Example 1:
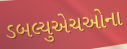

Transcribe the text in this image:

ડબલ્યુએચઓના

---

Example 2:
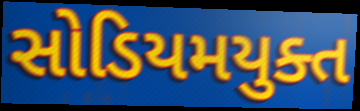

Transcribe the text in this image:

સોડિયમયુક્ત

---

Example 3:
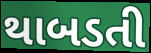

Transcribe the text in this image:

થાબડતી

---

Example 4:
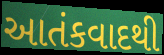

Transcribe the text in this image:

આતંકવાદથી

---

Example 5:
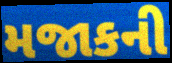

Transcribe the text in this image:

મજાકની